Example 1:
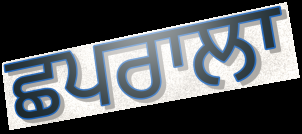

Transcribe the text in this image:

ਛਪਰਾਲਾ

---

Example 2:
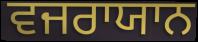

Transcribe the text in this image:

ਵਜਰਾਯਾਨ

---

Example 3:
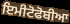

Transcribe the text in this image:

ਇਮੀਟੋਫੋਬੀਆ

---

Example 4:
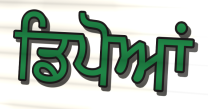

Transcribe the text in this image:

ਡਿਪੋਆਂ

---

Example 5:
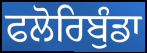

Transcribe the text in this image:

ਫਲੋਰਿਬੁੰਡਾ